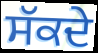
ਸੱਕਦੇ